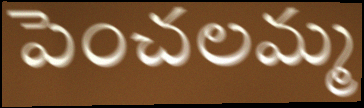
పెంచలమ్మ